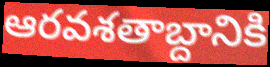
ఆరవశతాబ్దానికి